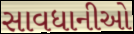
સાવધાનીઓ